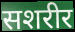
सशरीर